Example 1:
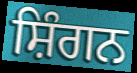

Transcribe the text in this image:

ਸ਼ਿੰਗਨ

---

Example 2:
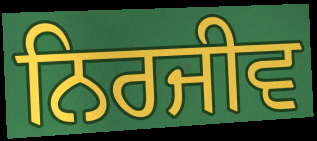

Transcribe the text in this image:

ਨਿਰਜੀਵ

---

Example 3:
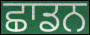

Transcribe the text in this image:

ਛਾਡਨ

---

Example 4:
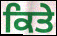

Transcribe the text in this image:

ਕਿਤੇ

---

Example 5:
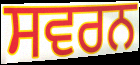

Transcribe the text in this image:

ਸਵਰਨ